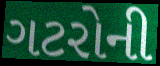
ગટરોની